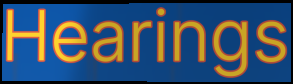
Hearings